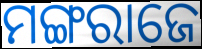
ମଙ୍ଗରାଜେ